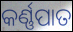
କର୍ଣ୍ଣପାତ